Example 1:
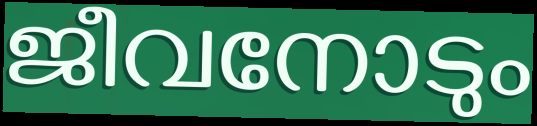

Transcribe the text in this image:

ജീവനോടും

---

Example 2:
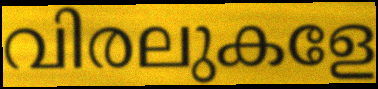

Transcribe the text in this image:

വിരലുകളേ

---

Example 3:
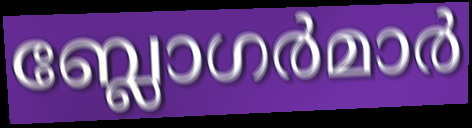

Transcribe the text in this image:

ബ്ലോഗർമാർ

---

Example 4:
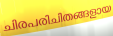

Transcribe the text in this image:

ചിരപരിചിതങ്ങളായ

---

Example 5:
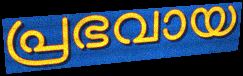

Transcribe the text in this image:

പ്രഭവായ